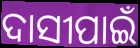
ଦାସୀପାଇଁ